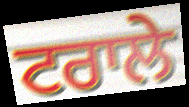
ਟਰਾਲੇ